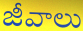
జీవాలు